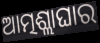
ଆତ୍ମଶ୍ଲାଘାର